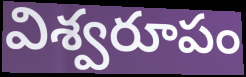
విశ్వరూపం